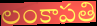
లంకాపతి